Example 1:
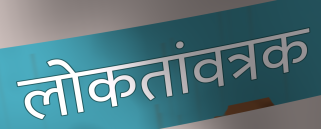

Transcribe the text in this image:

लोकतांवत्रक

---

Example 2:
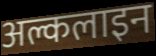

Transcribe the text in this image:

अल्कलाइन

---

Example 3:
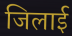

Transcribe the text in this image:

जिलाई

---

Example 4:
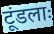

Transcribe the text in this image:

टूंडलाः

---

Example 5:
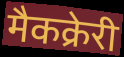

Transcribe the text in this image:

मैकक्रेरी